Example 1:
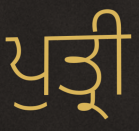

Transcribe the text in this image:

ਪੁਤ੍ਰੀ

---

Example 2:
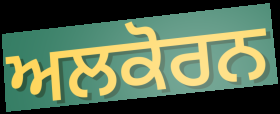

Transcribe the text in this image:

ਅਲਕੋਰਨ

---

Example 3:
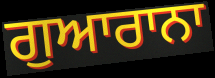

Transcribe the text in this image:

ਗੁਆਰਾਨਾ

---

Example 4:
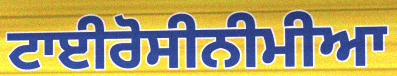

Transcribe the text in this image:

ਟਾਈਰੋਸੀਨੀਮੀਆ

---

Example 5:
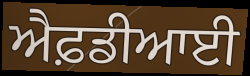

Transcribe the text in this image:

ਐਫ਼ਡੀਆਈ